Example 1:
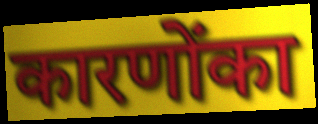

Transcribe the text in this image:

कारणोंका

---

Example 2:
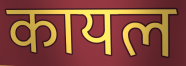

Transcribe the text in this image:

कायल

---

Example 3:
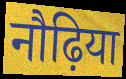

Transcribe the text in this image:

नौढ़िया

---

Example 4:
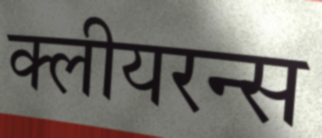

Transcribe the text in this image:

क्लीयरन्स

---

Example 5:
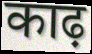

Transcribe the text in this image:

काढ़